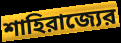
শাহিরাজ্যের